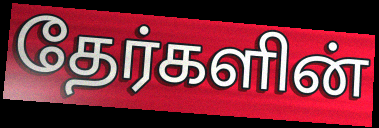
தேர்களின்